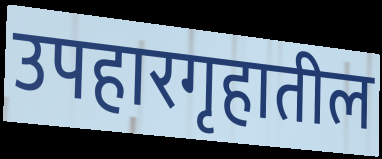
उपहारगृहातील